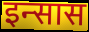
इन्सास